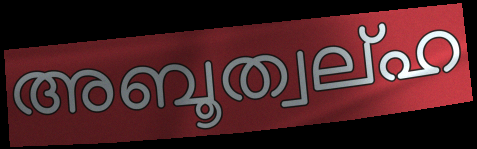
അബൂത്വല്ഹ